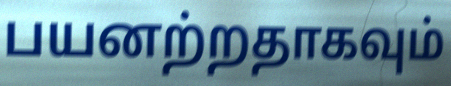
பயனற்றதாகவும்